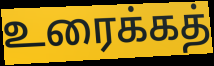
உரைக்கத்